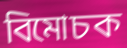
বিমোচক